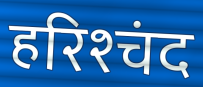
हरिश्चंद